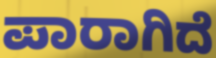
ಪಾರಾಗಿದೆ